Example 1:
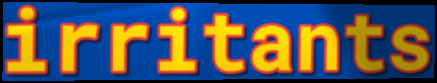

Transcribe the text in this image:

irritants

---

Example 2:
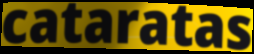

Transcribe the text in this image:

cataratas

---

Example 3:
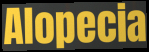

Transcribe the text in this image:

Alopecia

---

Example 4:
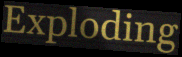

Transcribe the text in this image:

Exploding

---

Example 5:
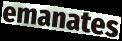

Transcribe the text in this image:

emanates